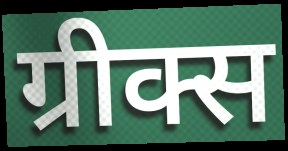
ग्रीक्स